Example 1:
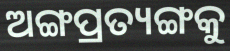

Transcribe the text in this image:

ଅଙ୍ଗପ୍ରତ୍ୟଙ୍ଗକୁ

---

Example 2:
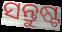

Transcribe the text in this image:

ସନ୍ତୁଷ୍ଟ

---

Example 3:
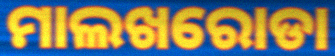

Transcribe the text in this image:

ମାଲଖରୋଡା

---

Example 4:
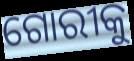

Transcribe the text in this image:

ଗୋରୀକୁ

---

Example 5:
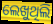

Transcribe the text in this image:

ଲେଖୁଥିଲି